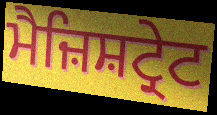
ਮੈਜ਼ਿਸ਼ਟ੍ਰੇਟ